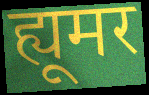
ह्यूमर